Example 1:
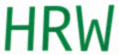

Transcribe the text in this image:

HRW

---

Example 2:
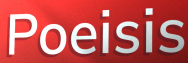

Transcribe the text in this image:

Poeisis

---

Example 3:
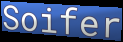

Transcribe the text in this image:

Soifer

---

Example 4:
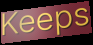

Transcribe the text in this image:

Keeps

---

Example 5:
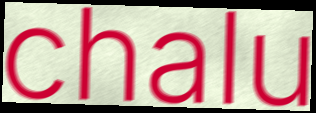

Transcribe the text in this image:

chalu